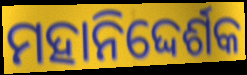
ମହାନିଦ୍ଦେର୍ଶକ